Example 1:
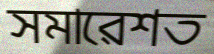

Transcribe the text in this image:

সমাৱেশত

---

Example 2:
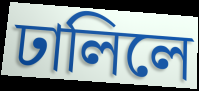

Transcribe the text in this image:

ঢালিলে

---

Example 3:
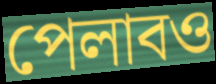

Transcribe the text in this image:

পেলাবও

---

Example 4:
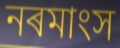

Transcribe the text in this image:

নৰমাংস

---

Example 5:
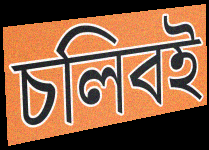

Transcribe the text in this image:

চলিবই